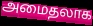
அமைதலாக